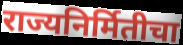
राज्यनिर्मितीचा